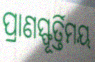
ପ୍ରାଣସ୍ଫୂର୍ତ୍ତିମୟ